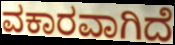
ವಕಾರವಾಗಿದೆ